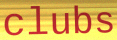
clubs